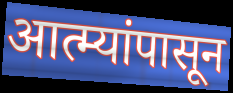
आत्म्यांपासून